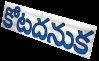
కోటదనుక